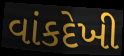
વાંકદેખી